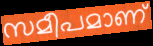
സമീപമാണ്